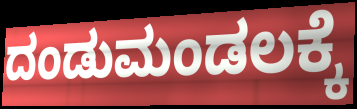
ದಂಡುಮಂಡಲಕ್ಕೆ